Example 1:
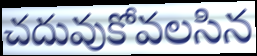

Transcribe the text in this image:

చదువుకోవలసిన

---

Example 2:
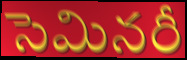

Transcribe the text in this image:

సెమినరీ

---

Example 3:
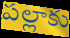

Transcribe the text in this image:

పల్లాకు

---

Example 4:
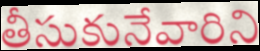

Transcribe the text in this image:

తీసుకునేవారిని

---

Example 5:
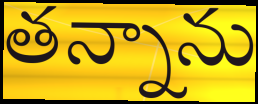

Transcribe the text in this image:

తన్నాను